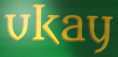
ukay